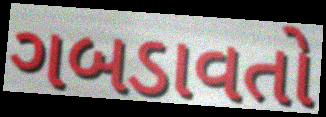
ગબડાવતો